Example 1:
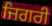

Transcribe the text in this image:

ਜਿਗਰੀ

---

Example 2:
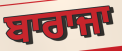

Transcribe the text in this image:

ਬਾਰਾਜਾ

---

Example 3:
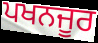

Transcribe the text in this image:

ਪਖਨਜੂਰ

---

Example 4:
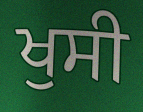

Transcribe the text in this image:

ਖੁਸੀ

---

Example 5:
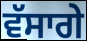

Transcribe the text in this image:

ਵੱਸਾਗੇ